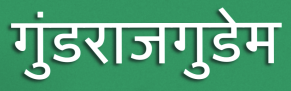
गुंडराजगुडेम